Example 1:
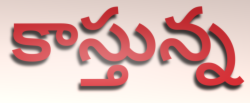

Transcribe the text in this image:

కాస్తున్న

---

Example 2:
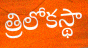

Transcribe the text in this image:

త్రిలోకస్థా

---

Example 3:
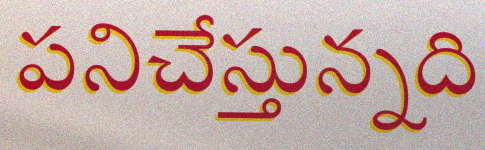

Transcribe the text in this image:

పనిచేస్తున్నది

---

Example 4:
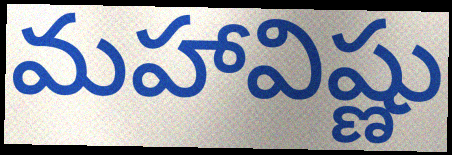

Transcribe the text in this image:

మహావిష్ణు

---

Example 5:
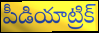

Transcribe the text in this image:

పీడియాట్రిక్